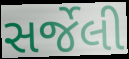
સર્જેલી